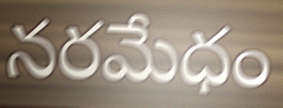
నరమేధం